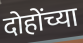
दोहोंच्या